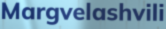
Margvelashvili